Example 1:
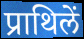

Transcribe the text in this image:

प्राथिलें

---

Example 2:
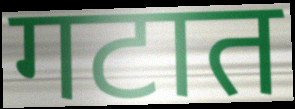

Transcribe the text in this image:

गटात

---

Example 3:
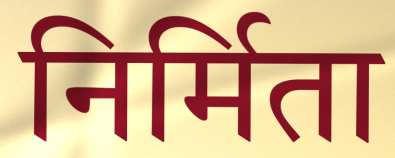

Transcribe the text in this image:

निर्मिता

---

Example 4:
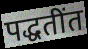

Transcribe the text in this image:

पद्धतींत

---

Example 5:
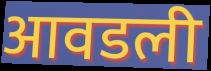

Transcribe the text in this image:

आवडली